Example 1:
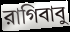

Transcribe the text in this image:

রাগিবাবু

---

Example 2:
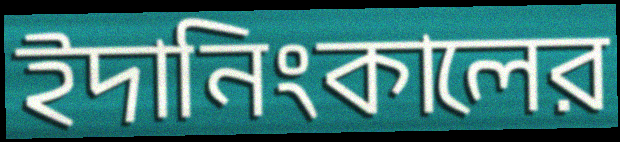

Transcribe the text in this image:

ইদানিংকালের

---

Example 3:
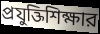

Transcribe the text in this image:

প্রযুক্তিশিক্ষার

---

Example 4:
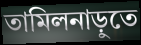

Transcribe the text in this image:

তামিলনাড়ুতে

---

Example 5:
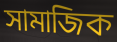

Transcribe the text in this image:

সামাজিক